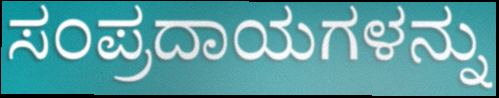
ಸಂಪ್ರದಾಯಗಳನ್ನು